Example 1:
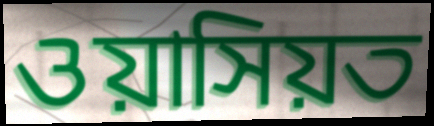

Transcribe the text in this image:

ওয়াসিয়ত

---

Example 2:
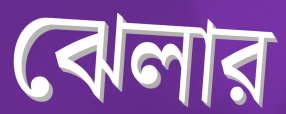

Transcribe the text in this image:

ঝেলার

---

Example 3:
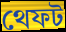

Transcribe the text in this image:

থেফট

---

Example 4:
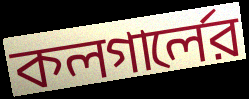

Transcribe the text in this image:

কলগার্লের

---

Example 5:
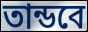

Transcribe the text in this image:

তান্ডবে